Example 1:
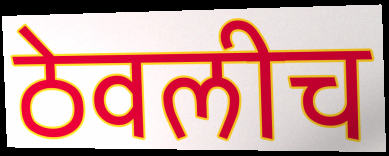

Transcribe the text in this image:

ठेवलीच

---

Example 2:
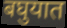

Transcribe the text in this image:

बघुयात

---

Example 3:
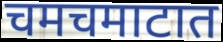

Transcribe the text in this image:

चमचमाटात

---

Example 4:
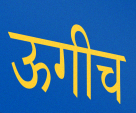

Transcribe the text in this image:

ऊगीच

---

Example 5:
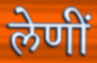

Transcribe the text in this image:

लेणीं